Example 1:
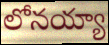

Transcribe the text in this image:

లోనయ్యా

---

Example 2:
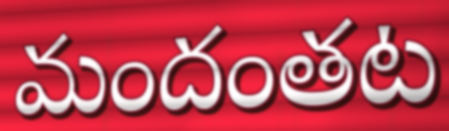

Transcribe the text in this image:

మందంతట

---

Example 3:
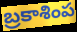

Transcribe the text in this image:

బ్రకాశింప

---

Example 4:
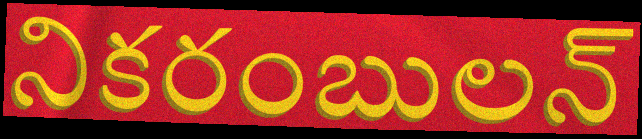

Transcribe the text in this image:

నికరంబులన్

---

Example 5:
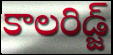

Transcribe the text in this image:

కాలరిడ్జ్